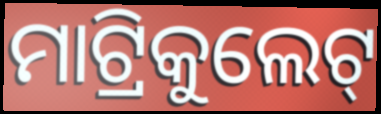
ମାଟ୍ରିକୁଲେଟ୍